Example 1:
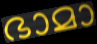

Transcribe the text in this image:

ഭാമാ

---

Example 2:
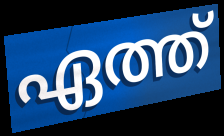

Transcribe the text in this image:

ഏത്ത്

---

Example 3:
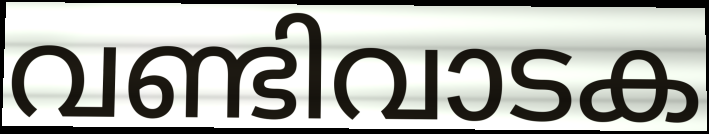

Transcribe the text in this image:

വണ്ടിവാടക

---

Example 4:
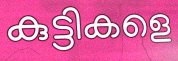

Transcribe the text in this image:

കുട്ടികളെ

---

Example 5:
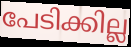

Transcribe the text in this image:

പേടിക്കില്ല